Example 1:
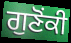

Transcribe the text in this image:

ਗੁਣੋਂਕੀ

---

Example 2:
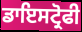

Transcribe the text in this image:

ਡਾਇਸਟ੍ਰੋਫੀ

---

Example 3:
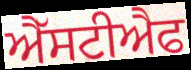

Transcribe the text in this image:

ਐੱਸਟੀਐਫ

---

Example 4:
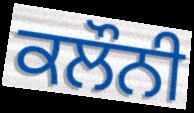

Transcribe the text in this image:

ਕਲੌਨੀ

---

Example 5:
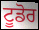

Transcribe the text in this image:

ਟੂਡੋਰ